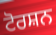
ਟੋਰਸ਼ਨ